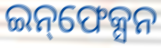
ଇନ୍‌ଫେକ୍ସନ